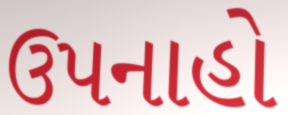
ઉપનાહો